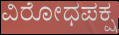
ವಿರೋಧಪಕ್ಷ